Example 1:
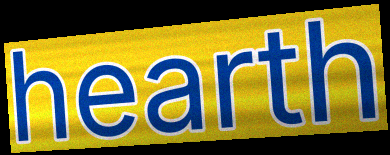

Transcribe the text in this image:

hearth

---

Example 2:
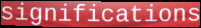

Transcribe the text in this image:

significations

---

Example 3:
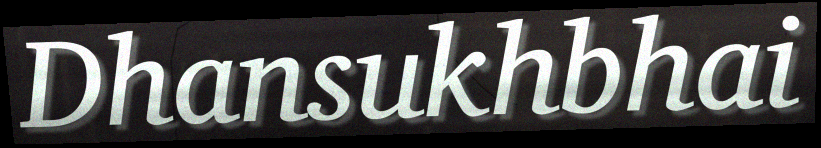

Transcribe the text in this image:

Dhansukhbhai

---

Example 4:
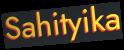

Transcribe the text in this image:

Sahityika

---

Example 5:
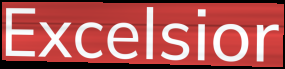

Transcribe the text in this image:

Excelsior